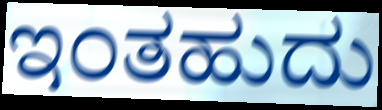
ಇಂತಹುದು